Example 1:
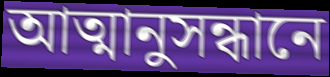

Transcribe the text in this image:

আত্মানুসন্ধানে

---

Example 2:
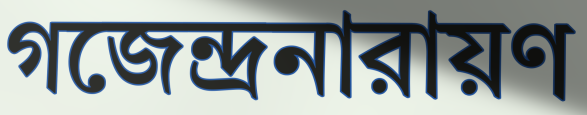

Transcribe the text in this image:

গজেন্দ্রনারায়ণ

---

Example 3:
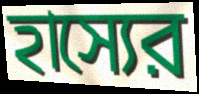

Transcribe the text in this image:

হাস্যের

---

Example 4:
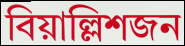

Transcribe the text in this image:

বিয়াল্লিশজন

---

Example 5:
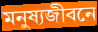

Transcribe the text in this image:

মনুষ্যজীবনে